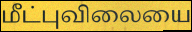
மீட்புவிலையை